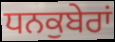
ਧਨਕੁਬੇਰਾਂ